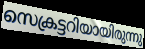
സെക്രട്ടറിയായിരുന്നു